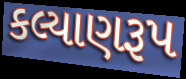
કલ્યાણરૂપ